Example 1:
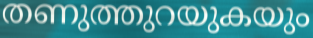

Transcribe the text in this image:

തണുത്തുറയുകയും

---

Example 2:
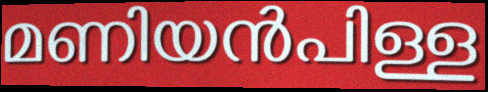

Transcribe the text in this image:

മണിയൻപിള്ള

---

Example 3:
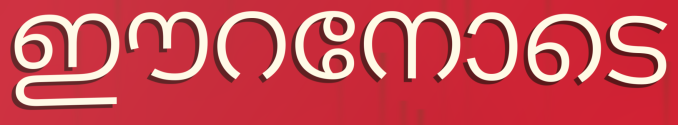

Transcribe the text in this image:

ഈറനോടെ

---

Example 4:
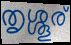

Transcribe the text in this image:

തൃശ്ശൂര്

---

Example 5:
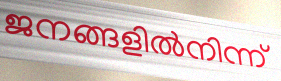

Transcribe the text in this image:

ജനങ്ങളിൽനിന്ന്